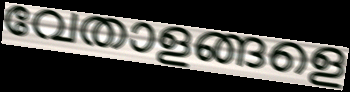
വേതാളങ്ങളെ